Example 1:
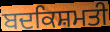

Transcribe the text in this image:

ਬਦਕਿਸ਼ਮਤੀ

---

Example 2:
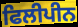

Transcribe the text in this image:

ਫਿਲੀਪੀਨ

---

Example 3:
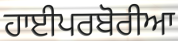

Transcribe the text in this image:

ਹਾਈਪਰਬੋਰੀਆ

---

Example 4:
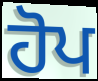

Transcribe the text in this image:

ਹੋਪ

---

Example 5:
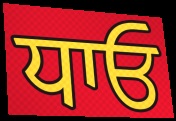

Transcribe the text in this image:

ਧਾਓ